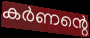
കർണന്റെ